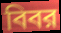
বিবর